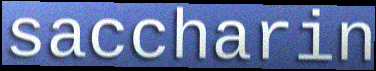
saccharin